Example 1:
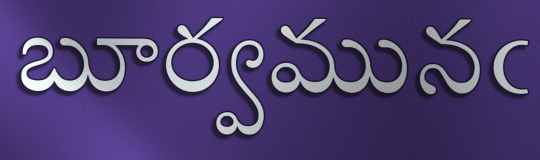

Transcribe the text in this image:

బూర్వమునఁ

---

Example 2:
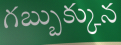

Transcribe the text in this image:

గబ్బుక్కున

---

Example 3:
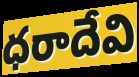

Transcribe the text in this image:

ధరాదేవి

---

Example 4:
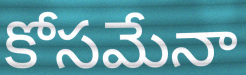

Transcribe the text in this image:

కోసమేనా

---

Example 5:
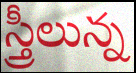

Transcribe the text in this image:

స్త్రీలున్న